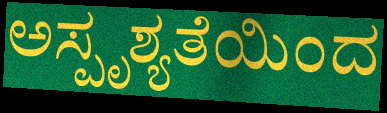
ಅಸ್ಪೃಶ್ಯತೆಯಿಂದ